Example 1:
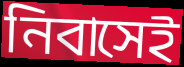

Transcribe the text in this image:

নিবাসেই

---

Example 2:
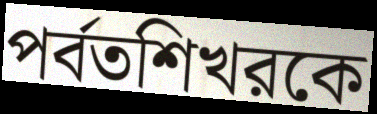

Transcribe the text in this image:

পর্বতশিখরকে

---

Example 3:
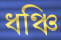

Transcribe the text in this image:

ধঞ্চি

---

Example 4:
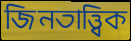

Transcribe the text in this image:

জিনতাত্ত্বিক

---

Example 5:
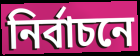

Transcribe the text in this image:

নির্বাচনে